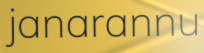
janarannu